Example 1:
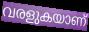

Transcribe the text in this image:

വരളുകയാണ്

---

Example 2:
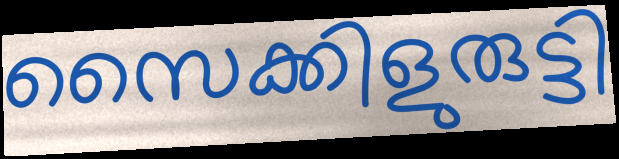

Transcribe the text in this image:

സൈക്കിളുരുട്ടി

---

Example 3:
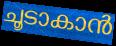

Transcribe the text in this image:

ചൂടാകാൻ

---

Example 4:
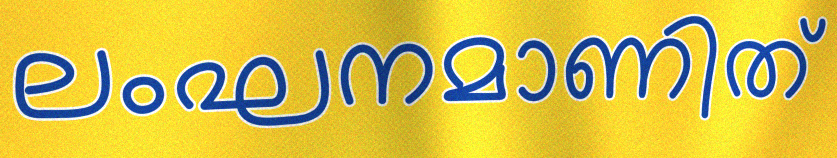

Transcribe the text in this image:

ലംഘനമാണിത്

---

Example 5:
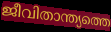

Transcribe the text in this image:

ജീവിതാന്ത്യത്തെ